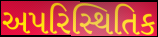
અપરિસ્થિતિક